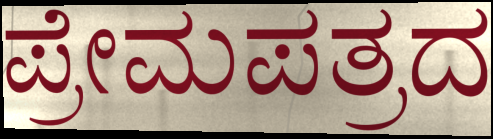
ಪ್ರೇಮಪತ್ರದ